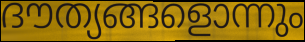
ദൗത്യങ്ങളൊന്നും